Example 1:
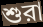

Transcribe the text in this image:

শুরা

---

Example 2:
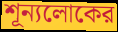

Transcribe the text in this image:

শূন্যলোকের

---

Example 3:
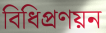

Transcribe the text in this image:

বিধিপ্রণয়ন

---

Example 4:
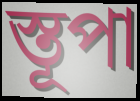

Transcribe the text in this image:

স্তূপা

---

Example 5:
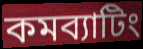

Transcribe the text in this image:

কমব্যাটিং